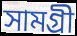
সামগ্ৰী